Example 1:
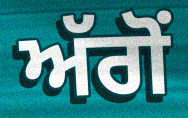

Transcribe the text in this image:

ਅੱਗੋਂ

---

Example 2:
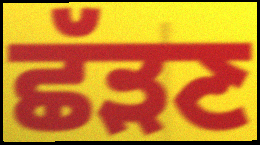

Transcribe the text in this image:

ਛੱੜਣ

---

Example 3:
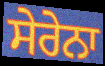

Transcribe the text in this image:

ਸੇਰੇਨਾ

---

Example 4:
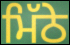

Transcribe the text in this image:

ਮਿੱਠੇ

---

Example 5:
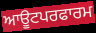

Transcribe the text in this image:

ਆਊਟਪਰਫਾਰਮ